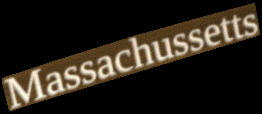
Massachussetts